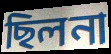
ছিলনা